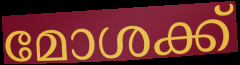
മോശക്ക്